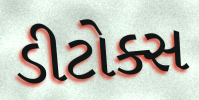
ડીટોક્સ